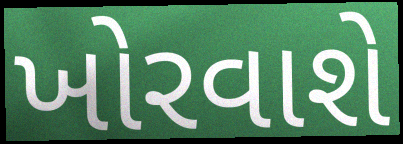
ખોરવાશે